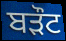
ਬੜੌਟ